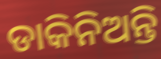
ଡାକିନିଅନ୍ତି